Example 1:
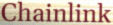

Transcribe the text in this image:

Chainlink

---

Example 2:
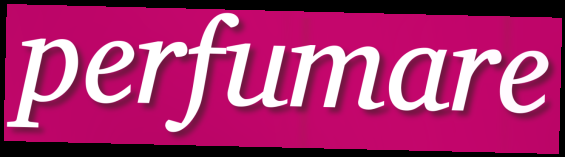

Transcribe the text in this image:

perfumare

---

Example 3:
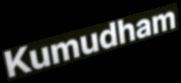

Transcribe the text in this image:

Kumudham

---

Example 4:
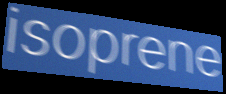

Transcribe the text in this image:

isoprene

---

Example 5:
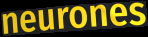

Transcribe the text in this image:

neurones